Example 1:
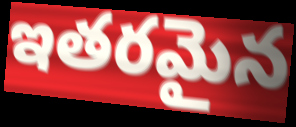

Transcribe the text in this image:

ఇతరమైన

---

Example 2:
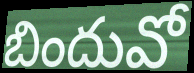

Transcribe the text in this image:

బిందువో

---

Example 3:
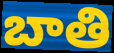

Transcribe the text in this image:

బాతి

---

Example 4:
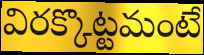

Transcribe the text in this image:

విరక్కొట్టమంటే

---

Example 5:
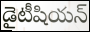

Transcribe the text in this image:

డైటీషియన్